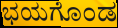
ಭಯಗೊಂಡ